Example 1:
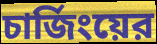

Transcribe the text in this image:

চার্জিংয়ের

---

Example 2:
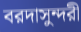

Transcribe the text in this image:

বরদাসুন্দরী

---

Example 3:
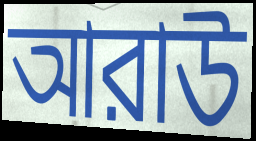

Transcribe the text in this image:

আরাউ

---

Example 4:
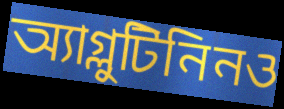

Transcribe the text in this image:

অ্যাগ্লুটিনিনও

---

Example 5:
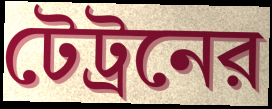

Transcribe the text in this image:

টেট্রনের